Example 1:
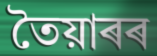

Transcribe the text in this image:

তৈয়াৰৰ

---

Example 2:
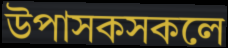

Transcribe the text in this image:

উপাসকসকলে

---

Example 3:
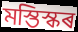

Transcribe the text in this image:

মস্তিস্কৰ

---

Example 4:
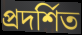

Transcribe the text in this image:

প্ৰদৰ্শিত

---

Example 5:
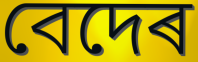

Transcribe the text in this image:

বেদেৰ